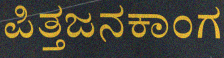
ಪಿತ್ತಜನಕಾಂಗ